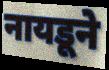
नायडूने